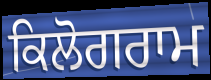
ਕਿਲੋਗਰਾਮ